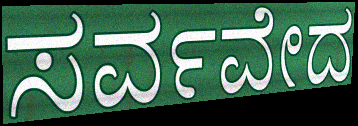
ಸರ್ವವೇದ